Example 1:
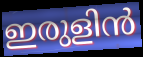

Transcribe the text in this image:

ഇരുളിൻ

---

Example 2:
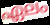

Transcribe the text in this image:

ഏലം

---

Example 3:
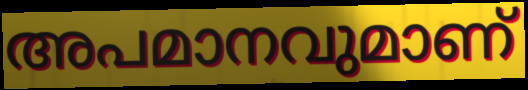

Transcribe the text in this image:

അപമാനവുമാണ്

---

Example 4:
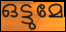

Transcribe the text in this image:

ഒട്ടുമേ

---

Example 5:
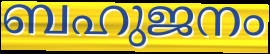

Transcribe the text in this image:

ബഹുജനം